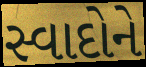
સ્વાદોને